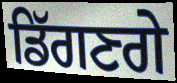
ਡਿੱਗਣਗੇ